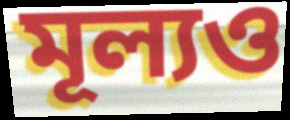
মূল্যও